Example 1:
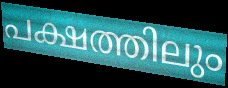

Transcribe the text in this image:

പക്ഷത്തിലും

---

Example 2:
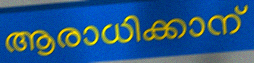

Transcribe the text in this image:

ആരാധിക്കാന്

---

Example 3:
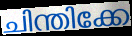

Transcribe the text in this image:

ചിന്തിക്കേ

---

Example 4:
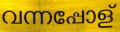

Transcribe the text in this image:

വന്നപ്പോള്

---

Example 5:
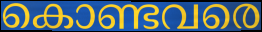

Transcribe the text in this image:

കൊണ്ടവരെ